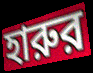
হারুর